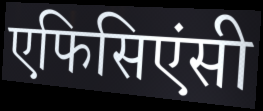
एफिसिएंसी